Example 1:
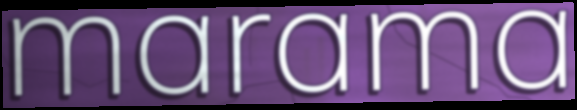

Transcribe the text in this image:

marama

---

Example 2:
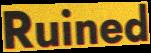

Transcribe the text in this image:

Ruined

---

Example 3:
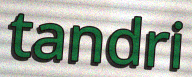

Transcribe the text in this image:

tandri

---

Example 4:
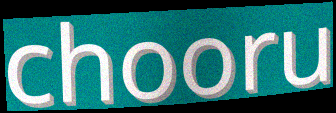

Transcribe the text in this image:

chooru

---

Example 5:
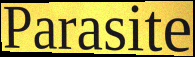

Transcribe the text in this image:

Parasite